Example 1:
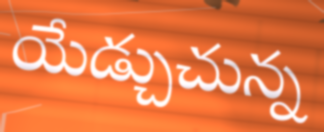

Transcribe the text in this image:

యేడ్చుచున్న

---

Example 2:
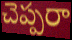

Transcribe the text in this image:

చెప్పరా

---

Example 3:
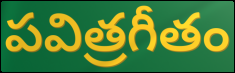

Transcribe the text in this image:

పవిత్రగీతం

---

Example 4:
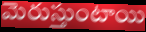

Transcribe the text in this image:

మెరుస్తుంటాయి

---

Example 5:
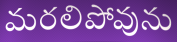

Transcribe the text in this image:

మరలిపోవును